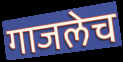
गाजलेच